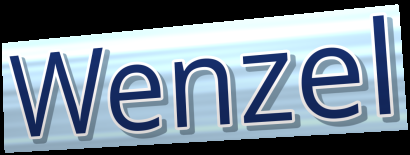
Wenzel